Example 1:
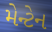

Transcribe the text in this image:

મેન્ટેન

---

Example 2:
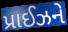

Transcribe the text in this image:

પ્રાઈઝને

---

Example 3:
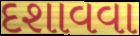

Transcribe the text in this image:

દશાવવા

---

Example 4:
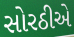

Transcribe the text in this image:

સોરઠીએ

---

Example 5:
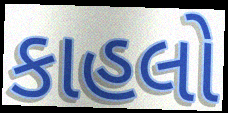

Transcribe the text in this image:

કાહલો